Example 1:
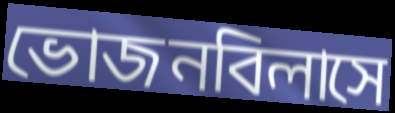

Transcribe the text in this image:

ভোজনবিলাসে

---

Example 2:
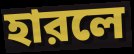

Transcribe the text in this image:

হারলে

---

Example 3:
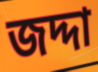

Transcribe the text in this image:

জদ্দা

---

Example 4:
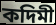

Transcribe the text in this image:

কদিমী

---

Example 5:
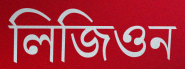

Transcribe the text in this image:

লিজিওন